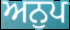
ਅਨੁਪ